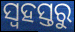
ସ୍ୱହସ୍ତରୁ